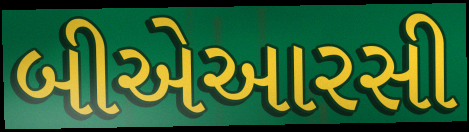
બીએઆરસી